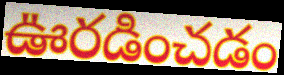
ఊరడించడం